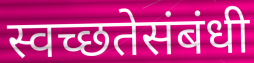
स्वच्छतेसंबंधी